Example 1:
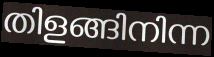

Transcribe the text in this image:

തിളങ്ങിനിന്ന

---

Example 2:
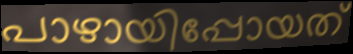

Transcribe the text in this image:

പാഴായിപ്പോയത്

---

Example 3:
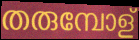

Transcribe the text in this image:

തരുമ്പോള്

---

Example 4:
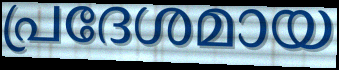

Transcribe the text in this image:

പ്രദേശമായ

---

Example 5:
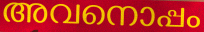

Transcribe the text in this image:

അവനൊപ്പം